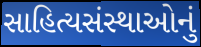
સાહિત્યસંસ્થાઓનું